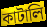
কাটালি